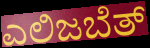
ಎಲಿಜಬೆತ್